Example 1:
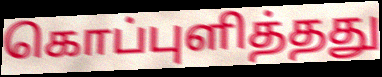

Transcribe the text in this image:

கொப்புளித்தது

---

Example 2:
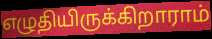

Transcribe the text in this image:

எழுதியிருக்கிறாராம்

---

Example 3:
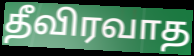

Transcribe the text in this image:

தீவிரவாத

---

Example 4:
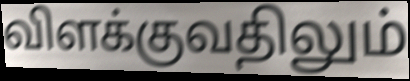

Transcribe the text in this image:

விளக்குவதிலும்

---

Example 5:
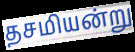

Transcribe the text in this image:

தசமியன்று